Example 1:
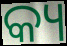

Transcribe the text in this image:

କ୍ୟ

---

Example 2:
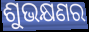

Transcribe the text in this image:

ଶୁଭକ୍ଷଣର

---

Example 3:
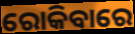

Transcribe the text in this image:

ରୋକିବାରେ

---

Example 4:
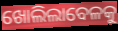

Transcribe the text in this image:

ଖୋଲିଲାବେଳକୁ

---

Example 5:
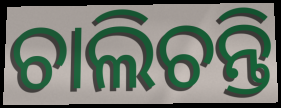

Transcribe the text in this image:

ଚାଲିଚନ୍ତି